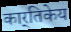
कार्तिकेय